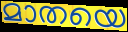
മാതയെ